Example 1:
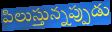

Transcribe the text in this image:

పిలుస్తున్నప్పుడు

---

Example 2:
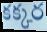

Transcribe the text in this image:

కక్కర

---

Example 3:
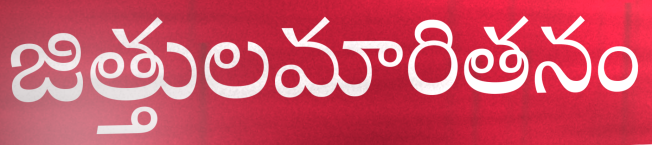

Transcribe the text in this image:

జిత్తులమారితనం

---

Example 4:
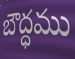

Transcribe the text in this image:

బౌద్ధము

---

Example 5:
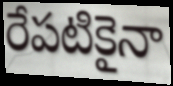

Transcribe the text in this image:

రేపటికైనా